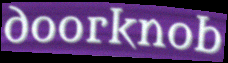
doorknob